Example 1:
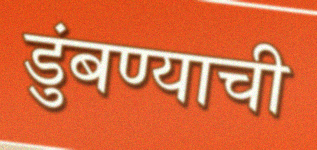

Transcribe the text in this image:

डुंबण्याची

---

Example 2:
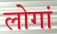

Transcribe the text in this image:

लोगां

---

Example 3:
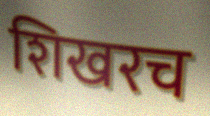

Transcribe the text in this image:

शिखरच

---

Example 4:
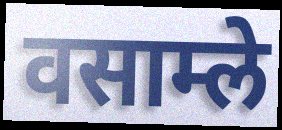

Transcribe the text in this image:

वसाम्ले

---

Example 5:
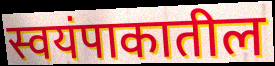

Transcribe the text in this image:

स्वयंपाकातील